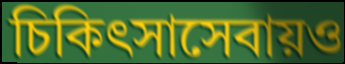
চিকিৎসাসেবায়ও